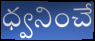
ధ్వనించే